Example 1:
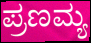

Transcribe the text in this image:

ಪ್ರಣಮ್ಯ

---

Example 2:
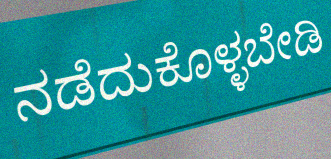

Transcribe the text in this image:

ನಡೆದುಕೊಳ್ಳಬೇಡಿ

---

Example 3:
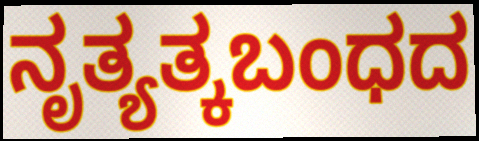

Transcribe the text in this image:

ನೃತ್ಯತ್ಕಬಂಧದ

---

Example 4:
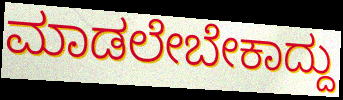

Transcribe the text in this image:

ಮಾಡಲೇಬೇಕಾದ್ದು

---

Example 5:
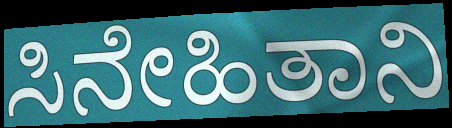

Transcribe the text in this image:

ಸಿನೇಹಿತಾನಿ